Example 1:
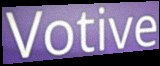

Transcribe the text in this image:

Votive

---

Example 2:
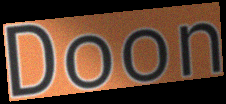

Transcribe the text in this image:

Doon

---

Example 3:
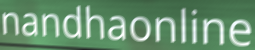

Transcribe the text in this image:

nandhaonline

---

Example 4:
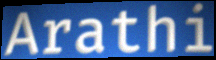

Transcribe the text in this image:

Arathi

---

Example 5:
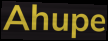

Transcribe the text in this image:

Ahupe